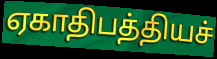
ஏகாதிபத்தியச்